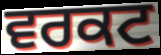
ਵਰਕਟ